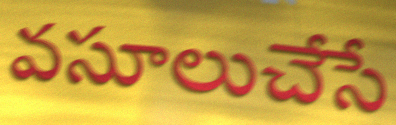
వసూలుచేసే